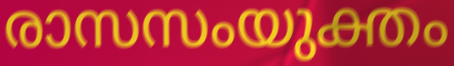
രാസസംയുക്തം